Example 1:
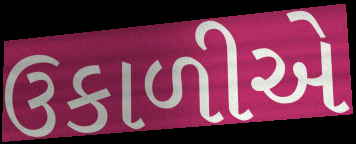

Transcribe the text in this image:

ઉકાળીએ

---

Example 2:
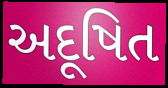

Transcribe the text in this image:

અદૂષિત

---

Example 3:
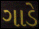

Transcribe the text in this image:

ગાડે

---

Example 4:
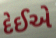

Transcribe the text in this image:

દેઈએ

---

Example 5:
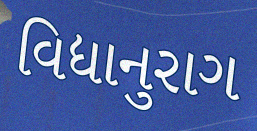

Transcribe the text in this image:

વિદ્યાનુરાગ